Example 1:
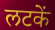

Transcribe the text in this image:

लटकें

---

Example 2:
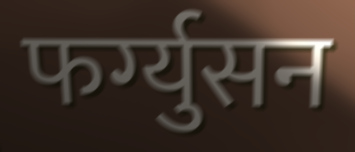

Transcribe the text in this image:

फर्ग्युसन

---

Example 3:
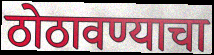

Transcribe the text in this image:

ठोठावण्याचा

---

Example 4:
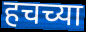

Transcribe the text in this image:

हचच्या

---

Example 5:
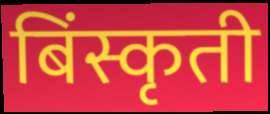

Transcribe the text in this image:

बिंस्कृती